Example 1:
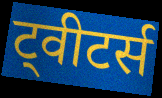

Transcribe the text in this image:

ट्वीटर्स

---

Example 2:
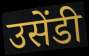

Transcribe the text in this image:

उसेंडी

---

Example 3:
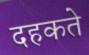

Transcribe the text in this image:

दहकते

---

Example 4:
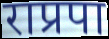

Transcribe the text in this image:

राप्रपा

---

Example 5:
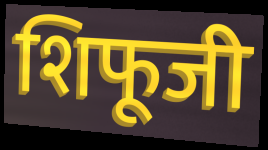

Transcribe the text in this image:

शिफूजी